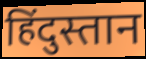
हिंदुस्‍तान